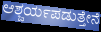
ಆಶ್ಚರ್ಯಪಡುತ್ತೇನೆ